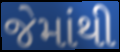
જેમાંથી